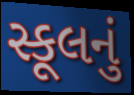
સ્કૂલનું